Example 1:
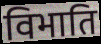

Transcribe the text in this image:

विभाति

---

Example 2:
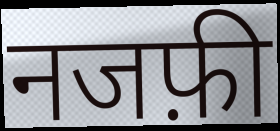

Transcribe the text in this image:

नजफ़ी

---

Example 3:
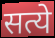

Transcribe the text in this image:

सत्ये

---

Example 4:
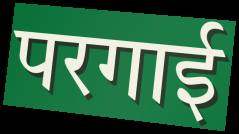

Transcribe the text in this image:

परगाई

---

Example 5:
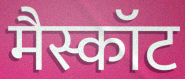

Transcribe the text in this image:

मैस्कॉट